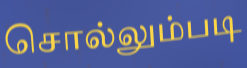
சொல்லும்படி